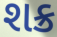
શક્ર